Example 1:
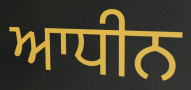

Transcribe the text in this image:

ਆਧੀਨ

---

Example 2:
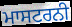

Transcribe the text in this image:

ਮਾਸਟਰਨੀ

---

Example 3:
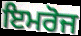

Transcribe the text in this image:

ਇਮਰੋਜ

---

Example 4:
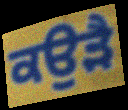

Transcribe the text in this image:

ਕਉੜੈ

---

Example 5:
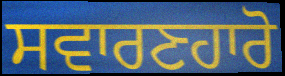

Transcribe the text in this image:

ਸਵਾਰਣਹਾਰੋ